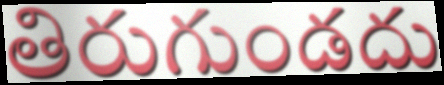
తిరుగుండదు